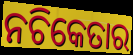
ନଚିକେତାର